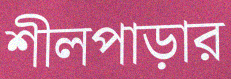
শীলপাড়ার